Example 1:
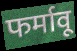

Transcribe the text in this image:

फर्मावू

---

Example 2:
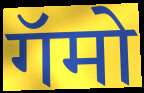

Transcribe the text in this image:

गॅमो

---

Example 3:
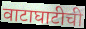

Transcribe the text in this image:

वाटाघाटीची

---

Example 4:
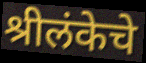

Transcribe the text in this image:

श्रीलंकेचे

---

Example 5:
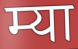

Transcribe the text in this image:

म्या